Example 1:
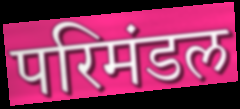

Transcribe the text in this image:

परिमंडल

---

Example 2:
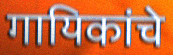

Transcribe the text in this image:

गायिकांचे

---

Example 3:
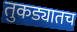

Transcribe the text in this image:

तुकड्यातच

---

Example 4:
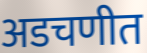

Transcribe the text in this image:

अडचणीत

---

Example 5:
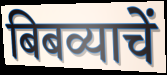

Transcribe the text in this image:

बिबव्याचें